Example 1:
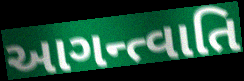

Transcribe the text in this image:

આગન્ત્વાતિ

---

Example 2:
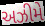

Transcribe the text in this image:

અઝીમે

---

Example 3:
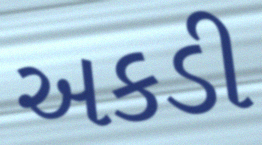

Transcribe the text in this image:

અકડી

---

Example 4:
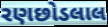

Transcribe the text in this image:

રણછોડલાલ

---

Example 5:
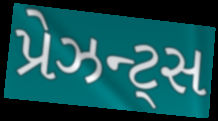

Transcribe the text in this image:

પ્રેઝન્ટ્સ